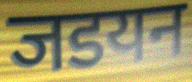
जडयन